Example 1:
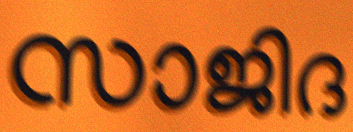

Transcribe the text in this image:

സാജിദ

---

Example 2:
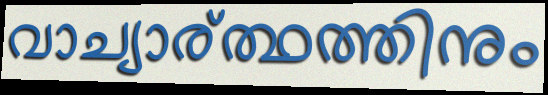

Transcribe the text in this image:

വാച്യാര്ത്ഥത്തിനും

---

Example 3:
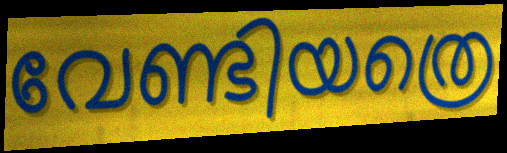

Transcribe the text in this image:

വേണ്ടിയത്രെ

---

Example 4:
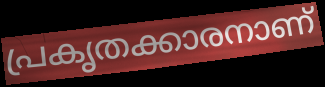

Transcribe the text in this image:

പ്രകൃതക്കാരനാണ്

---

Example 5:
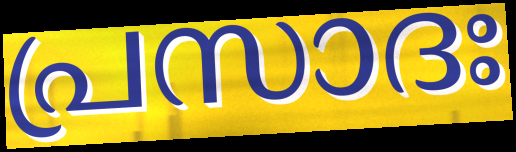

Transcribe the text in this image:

പ്രസാദഃ